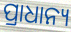
ପ୍ରାଧାନ୍ୟ